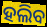
ହଲିବ